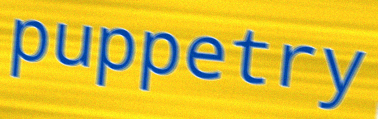
puppetry